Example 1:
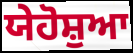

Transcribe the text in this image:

ਯੇਹੋਸ਼ੁਆ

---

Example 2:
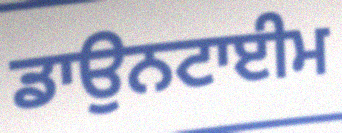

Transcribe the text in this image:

ਡਾਉਨਟਾਈਮ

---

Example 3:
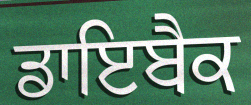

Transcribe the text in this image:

ਡਾਇਬੈਕ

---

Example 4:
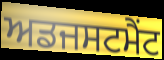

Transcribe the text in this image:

ਅਡਜਸਟਮੈਂਟ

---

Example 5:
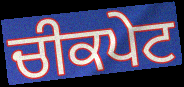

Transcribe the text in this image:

ਚੀਕਪੇਟ